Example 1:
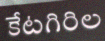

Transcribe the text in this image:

కేటగిరిల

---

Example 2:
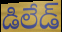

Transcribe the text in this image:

డిలేడ్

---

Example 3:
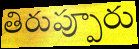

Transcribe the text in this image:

తిరుప్పూరు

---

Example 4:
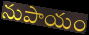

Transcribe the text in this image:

నుపాయం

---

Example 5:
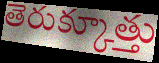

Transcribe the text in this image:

తెరుక్కూత్తు